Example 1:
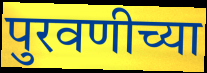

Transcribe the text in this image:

पुरवणीच्या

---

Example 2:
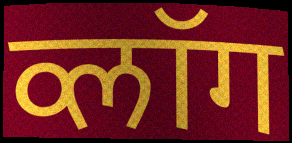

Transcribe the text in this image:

व्लॉग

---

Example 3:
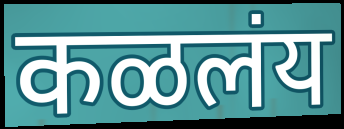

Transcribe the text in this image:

कळलंय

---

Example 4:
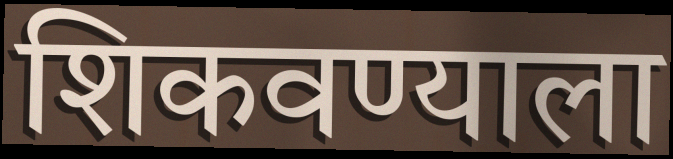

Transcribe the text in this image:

शिकवण्याला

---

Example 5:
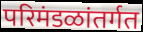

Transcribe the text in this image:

परिमंडळांतर्गत